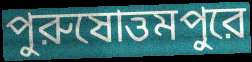
পুরুষোত্তমপুরে